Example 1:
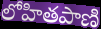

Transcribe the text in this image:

లోహితపాణి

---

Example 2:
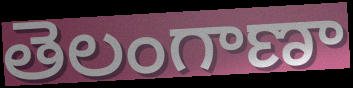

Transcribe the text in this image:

తెలంగాణా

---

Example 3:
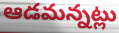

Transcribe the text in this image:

ఆడమన్నట్లు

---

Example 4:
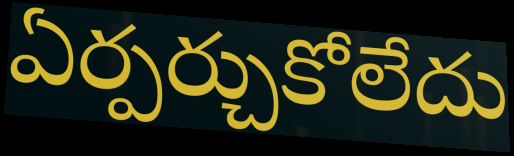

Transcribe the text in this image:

ఏర్పర్చుకోలేదు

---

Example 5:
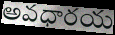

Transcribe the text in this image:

అవధారయ